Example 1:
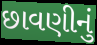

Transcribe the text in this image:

છાવણીનું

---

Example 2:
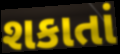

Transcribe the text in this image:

શકાતાં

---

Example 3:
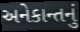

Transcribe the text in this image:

અનેકાન્તનું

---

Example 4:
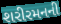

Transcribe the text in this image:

શરીરમનની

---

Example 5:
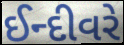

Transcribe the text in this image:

ઈન્દીવરે